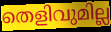
തെളിവുമില്ല